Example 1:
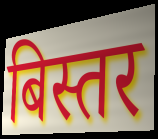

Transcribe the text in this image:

बिस्तर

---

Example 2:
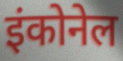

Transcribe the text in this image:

इंकोनेल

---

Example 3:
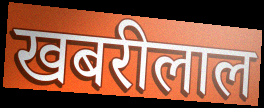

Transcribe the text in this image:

खबरीलाल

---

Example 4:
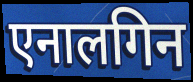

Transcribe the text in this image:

एनालगिन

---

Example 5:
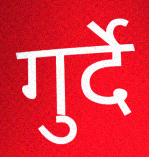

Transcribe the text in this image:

गुर्दे